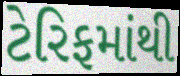
ટેરિફમાંથી